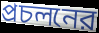
প্রচলনের